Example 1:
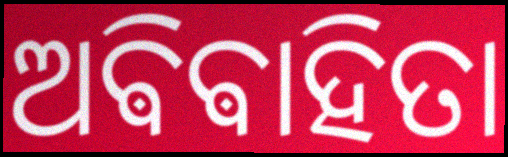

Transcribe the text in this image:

ଅଵିଵାହିତା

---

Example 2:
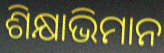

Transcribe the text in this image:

ଶିକ୍ଷାଭିମାନ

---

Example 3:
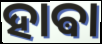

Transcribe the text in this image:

ହାଵା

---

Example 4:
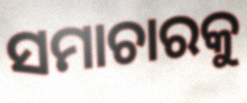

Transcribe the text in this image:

ସମାଚାରକୁ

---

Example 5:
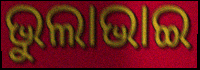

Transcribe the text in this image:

ଭୁଲାଭାଇ